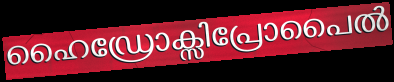
ഹൈഡ്രോക്സിപ്രോപൈൽ